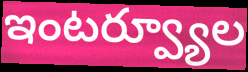
ఇంటర్వ్యూల